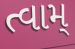
ત્વામ્